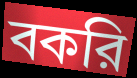
বকরি